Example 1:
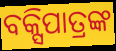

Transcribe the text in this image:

ବକ୍ସିପାତ୍ରଙ୍କ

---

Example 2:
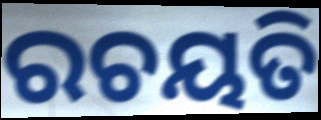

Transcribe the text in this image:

ରଚୟତି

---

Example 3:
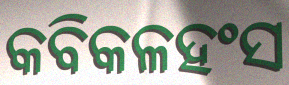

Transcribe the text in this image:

କବିକଳହଂସ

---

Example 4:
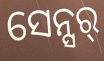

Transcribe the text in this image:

ସେନ୍ସର୍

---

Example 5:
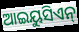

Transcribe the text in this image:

ଆଇୟୁସିଏନ୍